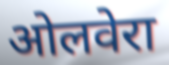
ओलवेरा